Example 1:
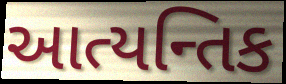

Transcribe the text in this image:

આત્યન્તિક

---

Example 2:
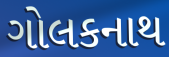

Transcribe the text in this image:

ગોલકનાથ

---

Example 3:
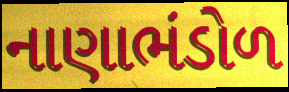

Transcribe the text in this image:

નાણાભંડોળ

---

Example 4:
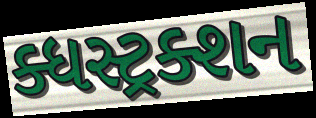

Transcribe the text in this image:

ક્ધસ્ટ્રક્શન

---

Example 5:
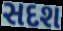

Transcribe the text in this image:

સદશ